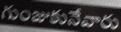
గుంజుకునేవారు